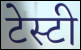
टेस्टी